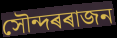
সৌন্দৰৰাজন